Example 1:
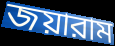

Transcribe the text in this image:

জয়ারাম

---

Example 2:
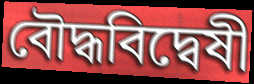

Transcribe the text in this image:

বৌদ্ধবিদ্বেষী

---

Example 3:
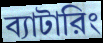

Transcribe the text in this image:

ব্যাটারিং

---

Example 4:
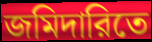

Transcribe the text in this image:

জমিদারিতে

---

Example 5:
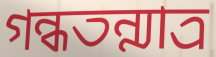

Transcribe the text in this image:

গন্ধতন্মাত্র